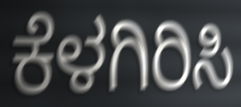
ಕೆಳಗಿರಿಸಿ